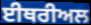
ਈਥਰੀਅਲ